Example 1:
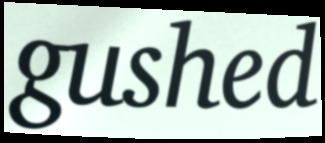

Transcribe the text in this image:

gushed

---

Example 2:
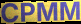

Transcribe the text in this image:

CPMM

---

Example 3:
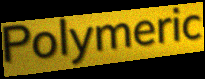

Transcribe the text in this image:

Polymeric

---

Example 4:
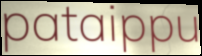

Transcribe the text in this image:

pataippu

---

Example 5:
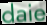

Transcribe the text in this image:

daie